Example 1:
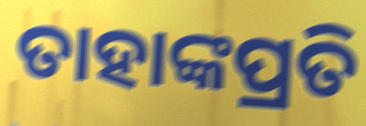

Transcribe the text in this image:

ତାହାଙ୍କପ୍ରତି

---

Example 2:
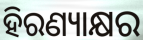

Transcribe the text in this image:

ହିରଣ୍ୟାକ୍ଷର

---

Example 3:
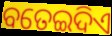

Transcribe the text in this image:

ବତେଇଦିଏ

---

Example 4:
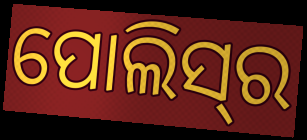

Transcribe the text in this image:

ପୋଲିସ୍‍ର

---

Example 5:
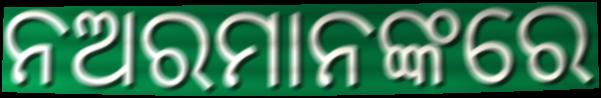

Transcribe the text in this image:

ନଅରମାନଙ୍କରେ